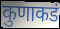
कुणाकडं